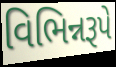
વિભિન્નરૂપે